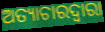
ଅତ୍ୟାଚାରଦ୍ୱାରା